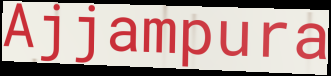
Ajjampura